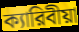
ক্যারিবীয়া